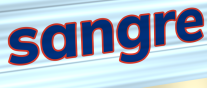
sangre